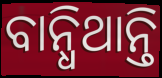
ବାନ୍ଧିଥାନ୍ତି